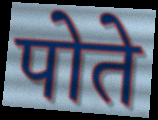
पोते